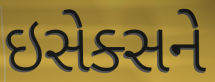
ઇસેક્સને